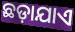
ଛଡ଼ାଯାଏ